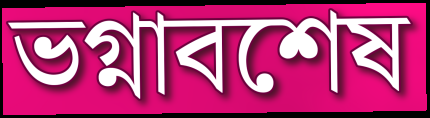
ভগ্নাবশেষ